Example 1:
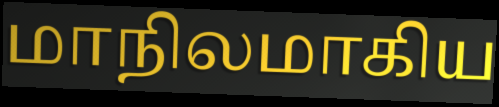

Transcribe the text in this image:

மாநிலமாகிய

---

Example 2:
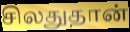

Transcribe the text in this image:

சிலதுதான்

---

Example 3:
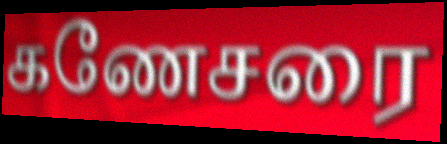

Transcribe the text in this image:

கணேசரை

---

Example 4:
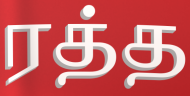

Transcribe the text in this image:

ரத்த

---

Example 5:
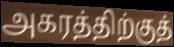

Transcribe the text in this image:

அகரத்திற்குத்